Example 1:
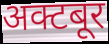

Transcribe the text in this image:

अक्टबूर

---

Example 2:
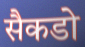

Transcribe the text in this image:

सैकडो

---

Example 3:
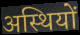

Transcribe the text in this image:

अस्थियों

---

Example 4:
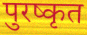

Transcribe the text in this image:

पुरष्कृत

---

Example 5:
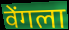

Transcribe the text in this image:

वेंगला